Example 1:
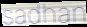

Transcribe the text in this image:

sadhan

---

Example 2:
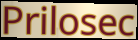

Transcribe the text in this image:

Prilosec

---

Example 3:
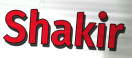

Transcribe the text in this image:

Shakir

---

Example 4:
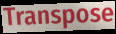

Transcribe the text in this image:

Transpose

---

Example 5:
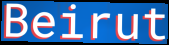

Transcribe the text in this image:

Beirut